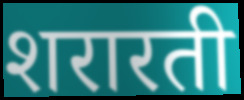
शरारती